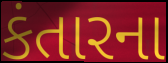
કંતારના